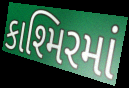
કાશ્મિરમાં